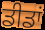
ਡੀਡਾਂ